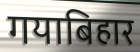
गयाबिहार